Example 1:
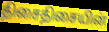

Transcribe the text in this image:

திசைதிசையின்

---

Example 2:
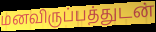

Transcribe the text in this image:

மனவிருப்பத்துடன்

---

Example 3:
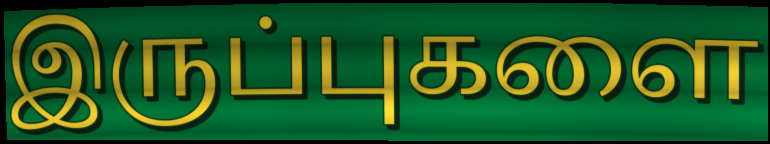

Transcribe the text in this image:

இருப்புகளை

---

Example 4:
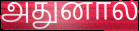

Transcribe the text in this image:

அதுனால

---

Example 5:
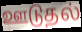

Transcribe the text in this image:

ஊடுதல்